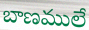
బాణములే